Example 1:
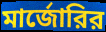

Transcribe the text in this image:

মার্জোরির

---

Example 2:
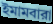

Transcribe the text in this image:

ইমামবারা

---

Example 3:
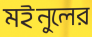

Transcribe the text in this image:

মইনুলের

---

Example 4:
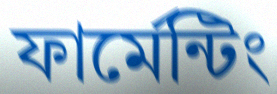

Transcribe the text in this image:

ফার্মেন্টিং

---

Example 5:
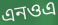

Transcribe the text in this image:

এনওএ